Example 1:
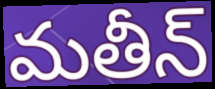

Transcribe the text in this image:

మతీన్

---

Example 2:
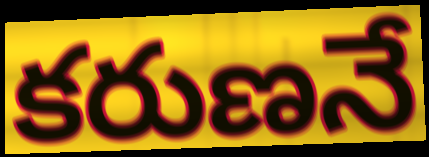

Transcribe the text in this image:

కరుణనే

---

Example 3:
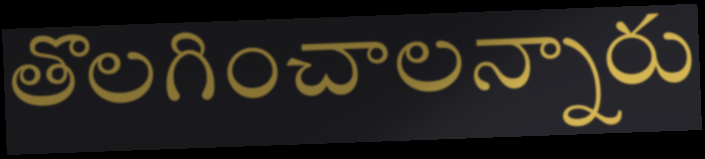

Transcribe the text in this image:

తొలగించాలన్నారు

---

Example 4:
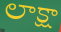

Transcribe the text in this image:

లాక్షా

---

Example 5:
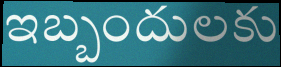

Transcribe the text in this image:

ఇబ్బందులకు